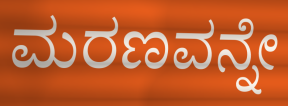
ಮರಣವನ್ನೇ